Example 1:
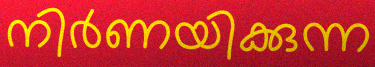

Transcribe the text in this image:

നിർണയിക്കുന്ന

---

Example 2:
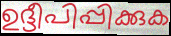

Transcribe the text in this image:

ഉദ്ദീപിപ്പിക്കുക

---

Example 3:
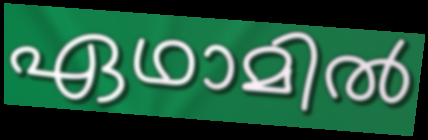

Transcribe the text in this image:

ഏഥാമിൽ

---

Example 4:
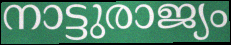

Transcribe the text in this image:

നാട്ടുരാജ്യം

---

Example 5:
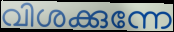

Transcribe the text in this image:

വിശക്കുന്നേ